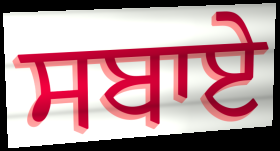
ਸਬਾਏ